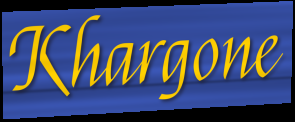
Khargone